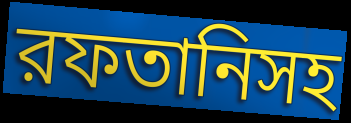
রফতানিসহ